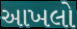
આખલો